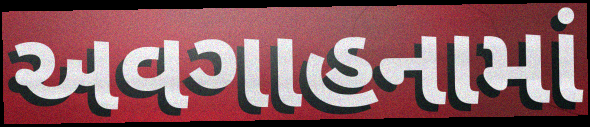
અવગાહનામાં